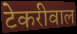
टेकरीवाल